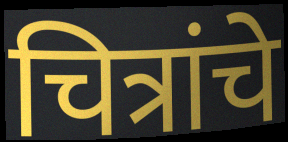
चित्रांचे